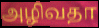
அழிவதா